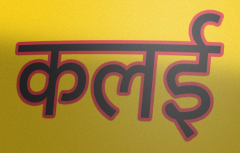
कलई